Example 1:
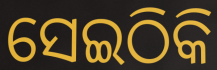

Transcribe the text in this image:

ସେଇଠିକି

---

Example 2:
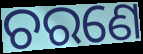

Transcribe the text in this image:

ଚରଣେ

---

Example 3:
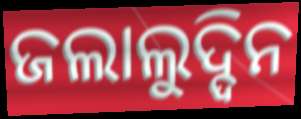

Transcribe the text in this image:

ଜଲାଲୁଦ୍ଦିନ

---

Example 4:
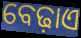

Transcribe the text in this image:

ବେଢ଼ାଏ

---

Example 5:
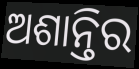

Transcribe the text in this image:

ଅଶାନ୍ତିର